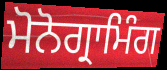
ਮੋਨੋਗ੍ਰਾਮਿੰਗ